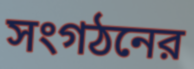
সংগঠনের